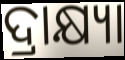
ଦ୍ରାକ୍ଷ୍ୟା